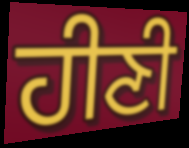
ਹੀਣੀ